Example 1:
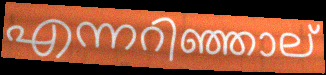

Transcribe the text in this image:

എന്നറിഞ്ഞാല്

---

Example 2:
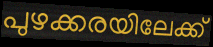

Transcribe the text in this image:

പുഴക്കരയിലേക്ക്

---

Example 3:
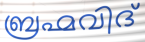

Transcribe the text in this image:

ബ്രഹ്മവിദ്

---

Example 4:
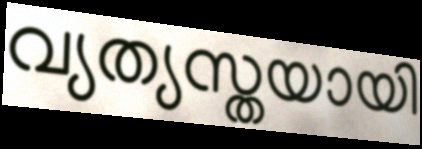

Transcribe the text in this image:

വ്യത്യസ്തയായി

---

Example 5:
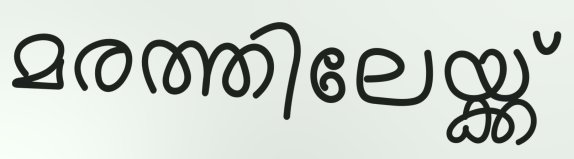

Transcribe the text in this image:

മരത്തിലേയ്ക്ക്